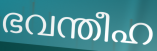
ഭവന്തീഹ